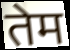
तेम